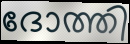
ദോത്തി